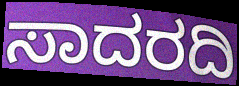
ಸಾದರದಿ